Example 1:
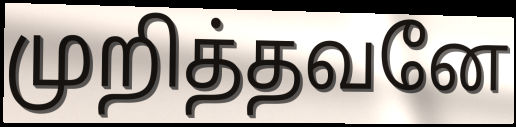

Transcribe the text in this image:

முறித்தவனே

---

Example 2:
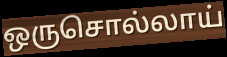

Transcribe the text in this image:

ஒருசொல்லாய்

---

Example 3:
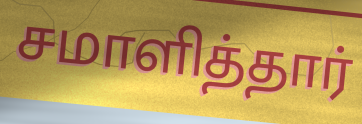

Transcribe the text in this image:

சமாளித்தார்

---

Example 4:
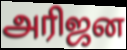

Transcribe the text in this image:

அரிஜன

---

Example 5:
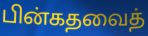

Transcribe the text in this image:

பின்கதவைத்